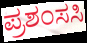
ಪ್ರಶಂಸಸಿ